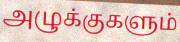
அழுக்குகளும்